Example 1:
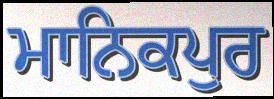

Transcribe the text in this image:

ਮਾਨਿਕਪੁਰ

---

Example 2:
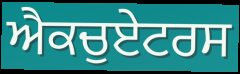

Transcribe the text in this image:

ਐਕਚੁਏਟਰਸ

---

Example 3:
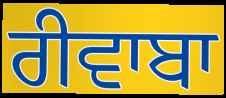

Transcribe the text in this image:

ਰੀਵਾਬਾ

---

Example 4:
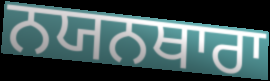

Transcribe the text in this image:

ਨਯਨਥਾਰਾ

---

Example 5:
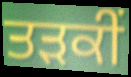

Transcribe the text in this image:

ਤੜਕੀਂ